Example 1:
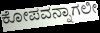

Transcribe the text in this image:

ಕೋಪವನ್ನಾಗಲೀ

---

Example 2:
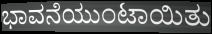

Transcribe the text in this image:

ಭಾವನೆಯುಂಟಾಯಿತು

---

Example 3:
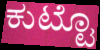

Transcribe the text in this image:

ಕುಟ್ಟೊ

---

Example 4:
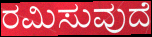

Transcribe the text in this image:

ರಮಿಸುವುದೆ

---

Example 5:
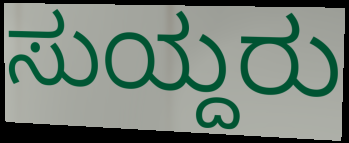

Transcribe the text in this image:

ಸುಯ್ದರು